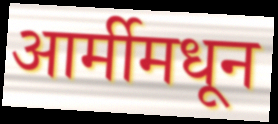
आर्मीमधून